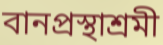
বানপ্রস্থাশ্রমী